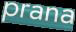
prana